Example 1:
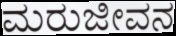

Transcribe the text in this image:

ಮರುಜೀವನ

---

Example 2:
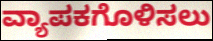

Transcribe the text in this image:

ವ್ಯಾಪಕಗೊಳಿಸಲು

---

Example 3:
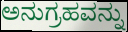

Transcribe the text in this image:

ಅನುಗ್ರಹವನ್ನು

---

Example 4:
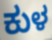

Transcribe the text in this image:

ಕುಳ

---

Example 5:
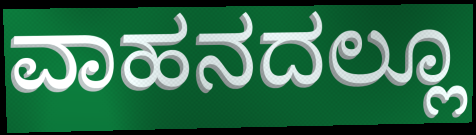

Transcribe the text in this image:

ವಾಹನದಲ್ಲೂ